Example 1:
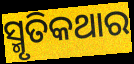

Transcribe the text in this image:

ସ୍ମୃତିକଥାର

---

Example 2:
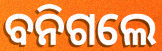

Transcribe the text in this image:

ବନିଗଲେ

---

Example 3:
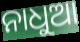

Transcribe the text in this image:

ନାଧୁଆ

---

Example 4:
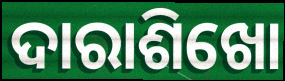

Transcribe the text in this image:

ଦାରାଶିଖୋ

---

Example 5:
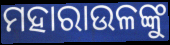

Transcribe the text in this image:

ମହାରାଉଳଙ୍କୁ